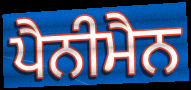
ਪੈਨੀਮੈਨ